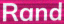
Rand